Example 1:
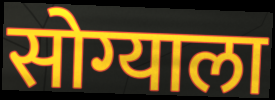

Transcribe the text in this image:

सोग्याला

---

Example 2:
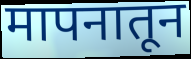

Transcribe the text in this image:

मापनातून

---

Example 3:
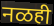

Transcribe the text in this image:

नळही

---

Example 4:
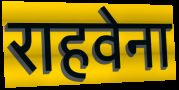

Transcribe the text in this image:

राहवेना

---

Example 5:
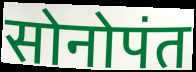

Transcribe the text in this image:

सोनोपंत